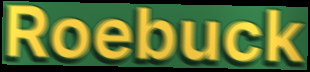
Roebuck